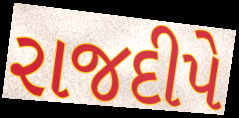
રાજદીપે